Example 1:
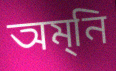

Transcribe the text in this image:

অম্‌নি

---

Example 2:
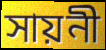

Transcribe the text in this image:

সায়নী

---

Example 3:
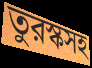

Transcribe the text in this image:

তুরস্কসহ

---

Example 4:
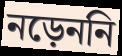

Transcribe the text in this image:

নড়েননি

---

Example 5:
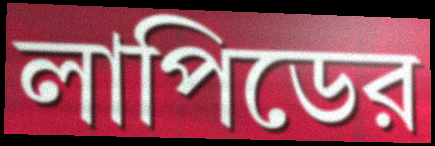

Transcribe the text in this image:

লাপিডের